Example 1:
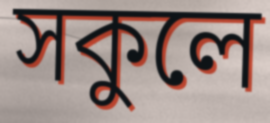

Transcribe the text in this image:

সকুলে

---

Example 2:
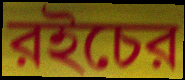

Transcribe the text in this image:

রইচের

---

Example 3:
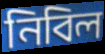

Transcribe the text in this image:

নিবিল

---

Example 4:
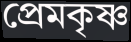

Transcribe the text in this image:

প্রেমকৃষ্ণ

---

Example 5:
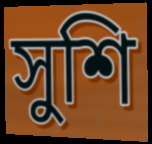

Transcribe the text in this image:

সুশি